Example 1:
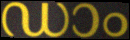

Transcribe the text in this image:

ഡാം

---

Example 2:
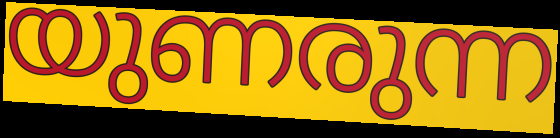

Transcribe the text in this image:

യുണരുന്ന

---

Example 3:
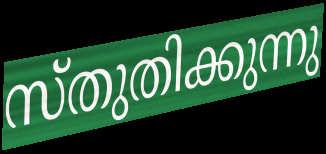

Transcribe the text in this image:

സ്തുതിക്കുന്നു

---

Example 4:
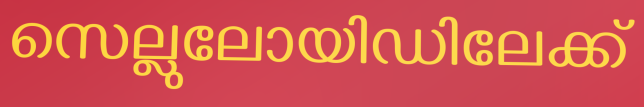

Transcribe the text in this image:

സെല്ലുലോയിഡിലേക്ക്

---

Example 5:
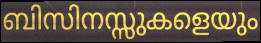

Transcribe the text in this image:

ബിസിനസ്സുകളെയും